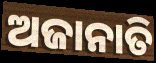
ଅଜାନାତି